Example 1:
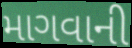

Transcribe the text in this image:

માગવાની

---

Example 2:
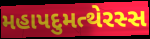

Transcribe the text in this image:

મહાપદુમત્થેરસ્સ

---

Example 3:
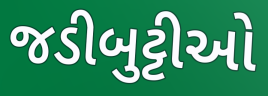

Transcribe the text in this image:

જડીબુટ્ટીઓ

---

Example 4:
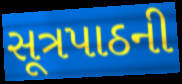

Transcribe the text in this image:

સૂત્રપાઠની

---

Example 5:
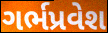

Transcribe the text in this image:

ગર્ભપ્રવેશ